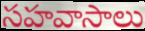
సహవాసాలు